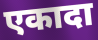
एकादा